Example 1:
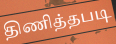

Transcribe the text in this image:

திணித்தபடி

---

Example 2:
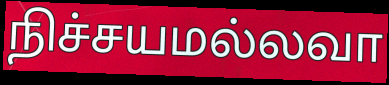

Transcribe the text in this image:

நிச்சயமல்லவா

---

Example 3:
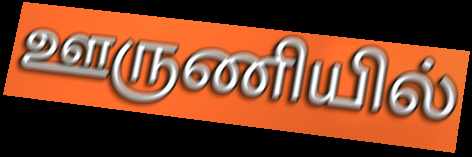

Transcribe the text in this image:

ஊருணியில்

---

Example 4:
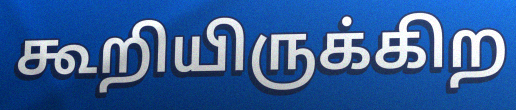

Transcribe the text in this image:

கூறியிருக்கிற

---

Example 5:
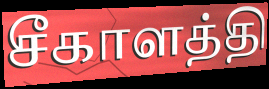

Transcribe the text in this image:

சீகாளத்தி